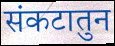
संकटातुन